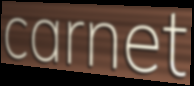
carnet